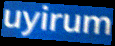
uyirum